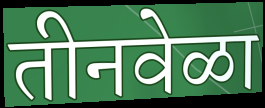
तीनवेळा